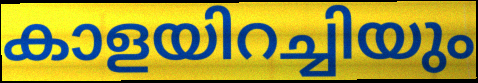
കാളയിറച്ചിയും